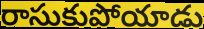
రాసుకుపోయాడు